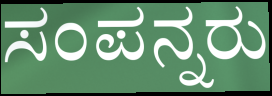
ಸಂಪನ್ನರು